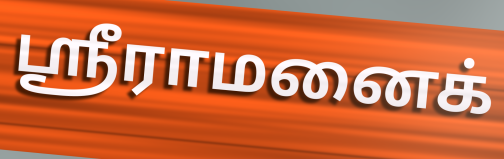
ஸ்ரீராமனைக்